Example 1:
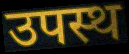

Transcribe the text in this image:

उपस्थ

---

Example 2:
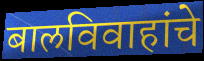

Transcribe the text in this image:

बालविवाहांचे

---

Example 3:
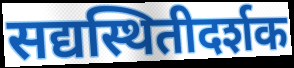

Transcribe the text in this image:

सद्यस्थितीदर्शक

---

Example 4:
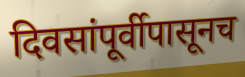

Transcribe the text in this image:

दिवसांपूर्वीपासूनच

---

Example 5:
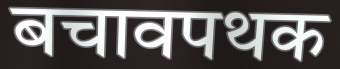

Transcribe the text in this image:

बचावपथक